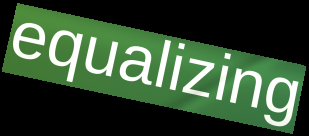
equalizing